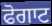
ਫੋਗਾਟ